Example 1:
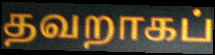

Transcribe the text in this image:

தவறாகப்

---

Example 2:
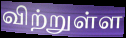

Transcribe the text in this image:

விற்றுள்ள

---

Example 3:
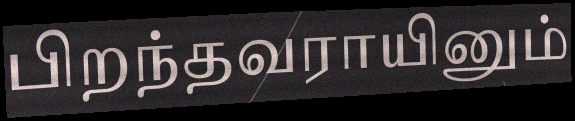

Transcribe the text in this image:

பிறந்தவராயினும்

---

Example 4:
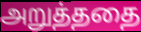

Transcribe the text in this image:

அறுத்ததை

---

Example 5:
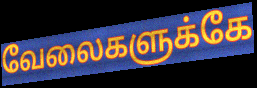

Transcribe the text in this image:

வேலைகளுக்கே